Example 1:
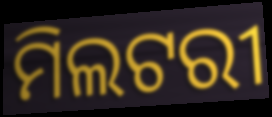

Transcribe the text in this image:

ମିଲଟରୀ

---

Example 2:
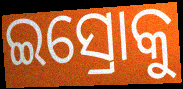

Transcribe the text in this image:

ଇସ୍ରୋକୁ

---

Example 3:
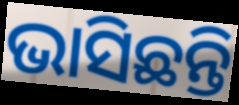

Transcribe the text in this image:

ଭାସିଛନ୍ତି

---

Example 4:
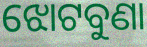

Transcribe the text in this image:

ଝୋଟବୁଣା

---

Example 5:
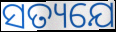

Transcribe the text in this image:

ସତ୍ୟଯେ